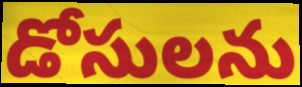
డోసులను